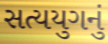
સત્યયુગનું